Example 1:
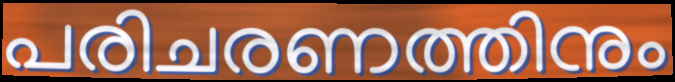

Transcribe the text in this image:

പരിചരണത്തിനും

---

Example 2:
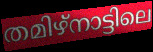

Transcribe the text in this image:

തമിഴ്നാട്ടിലെ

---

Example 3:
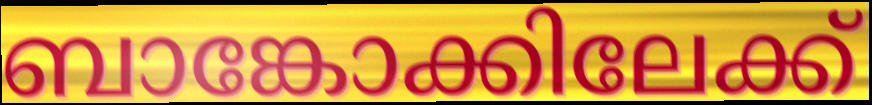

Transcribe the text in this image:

ബാങ്കോക്കിലേക്ക്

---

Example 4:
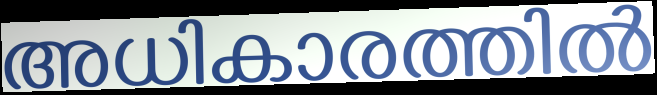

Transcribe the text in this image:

അധികാരത്തിൽ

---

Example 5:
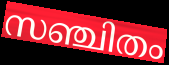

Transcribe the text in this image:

സഞ്ചിതം